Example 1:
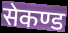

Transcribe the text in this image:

सेकण्ड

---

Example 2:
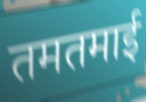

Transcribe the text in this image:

तमतमाई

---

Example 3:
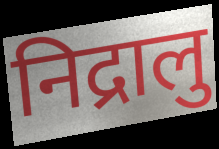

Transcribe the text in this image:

निद्रालु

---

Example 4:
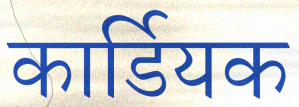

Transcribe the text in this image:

कार्डियक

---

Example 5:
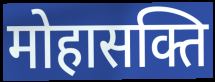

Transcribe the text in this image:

मोहासक्ति